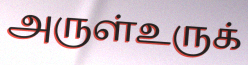
அருள்உருக்